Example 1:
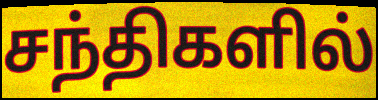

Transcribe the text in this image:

சந்திகளில்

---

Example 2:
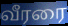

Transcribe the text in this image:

வீரரை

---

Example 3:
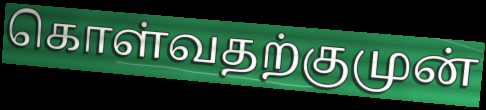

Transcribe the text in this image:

கொள்வதற்குமுன்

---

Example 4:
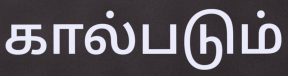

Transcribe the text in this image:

கால்படும்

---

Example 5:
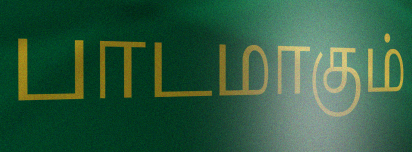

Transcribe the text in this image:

பாடமாகும்